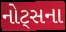
નોટ્સના